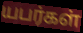
யபர்கள்